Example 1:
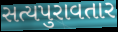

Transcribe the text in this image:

સત્યપુરાવતાર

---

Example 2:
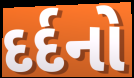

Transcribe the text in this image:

દર્દનો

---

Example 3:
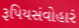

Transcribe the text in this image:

રૂપિયસંવોહારં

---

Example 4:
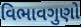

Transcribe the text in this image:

વિભાવગુણો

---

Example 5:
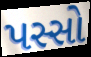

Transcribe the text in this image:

પસ્સો